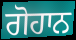
ਗੋਹਾਨ